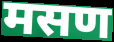
मसण